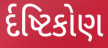
ર્દષ્ટિકોણ